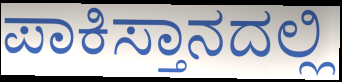
ಪಾಕಿಸ್ತಾನದಲ್ಲಿ